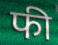
फी